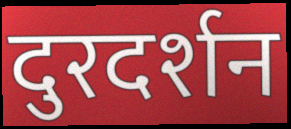
दुरदर्शन